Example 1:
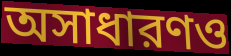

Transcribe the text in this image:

অসাধারণও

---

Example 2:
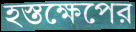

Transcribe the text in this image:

হস্তক্ষেপের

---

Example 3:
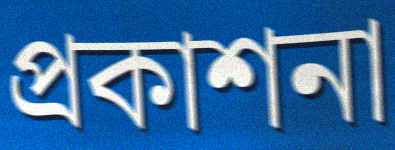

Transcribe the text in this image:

প্রকাশনা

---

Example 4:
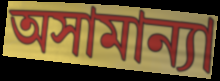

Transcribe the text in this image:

অসামান্যা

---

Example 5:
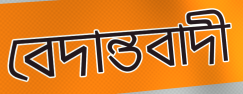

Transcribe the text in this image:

বেদান্তবাদী